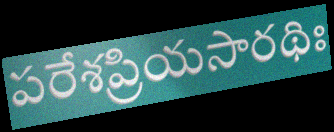
పరేశప్రియసారథిః